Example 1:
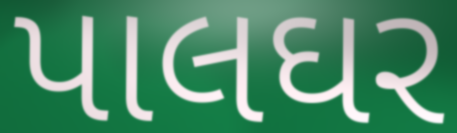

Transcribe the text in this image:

પાલઘર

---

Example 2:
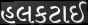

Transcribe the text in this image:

હલકટાઈ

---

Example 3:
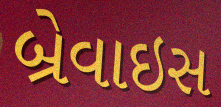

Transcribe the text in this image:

બ્રેવાઇસ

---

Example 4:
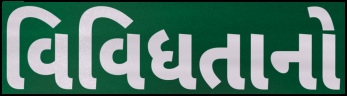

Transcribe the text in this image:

વિવિધતાનો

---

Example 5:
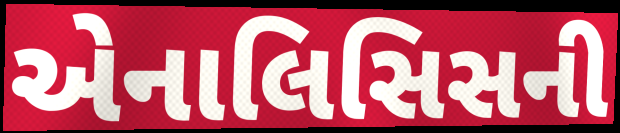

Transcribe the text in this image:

એનાલિસિસની